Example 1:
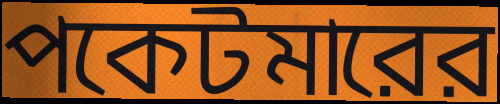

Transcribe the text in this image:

পকেটমারের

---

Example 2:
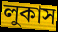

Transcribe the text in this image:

লুকাস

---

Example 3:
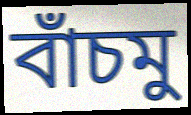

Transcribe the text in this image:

বাঁচমু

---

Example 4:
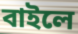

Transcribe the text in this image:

বাইলে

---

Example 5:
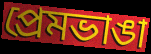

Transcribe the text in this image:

প্রেমভাঙা